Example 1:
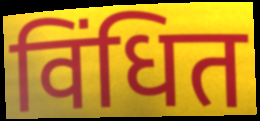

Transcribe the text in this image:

विंधित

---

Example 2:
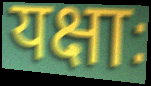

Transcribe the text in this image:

यक्षाः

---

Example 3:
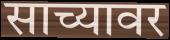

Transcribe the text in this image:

साच्यावर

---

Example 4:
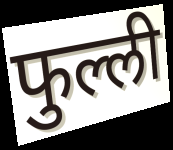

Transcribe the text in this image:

फुल्ली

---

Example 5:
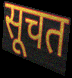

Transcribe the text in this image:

सूचत